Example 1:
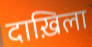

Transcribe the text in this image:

दाख़िला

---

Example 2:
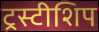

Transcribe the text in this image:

ट्रस्टीशिप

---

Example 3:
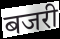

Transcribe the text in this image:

बजरी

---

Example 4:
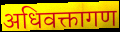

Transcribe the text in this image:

अधिवक्तागण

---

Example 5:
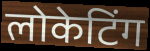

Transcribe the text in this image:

लोकेटिंग